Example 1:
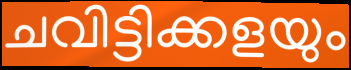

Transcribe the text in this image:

ചവിട്ടിക്കളയും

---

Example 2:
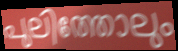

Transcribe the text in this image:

പുലിത്തോലും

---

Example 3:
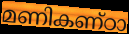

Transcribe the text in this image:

മണികണ്ഠാ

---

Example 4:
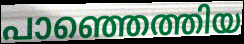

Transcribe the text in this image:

പാഞ്ഞെത്തിയ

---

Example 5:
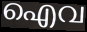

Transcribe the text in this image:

ഐവ